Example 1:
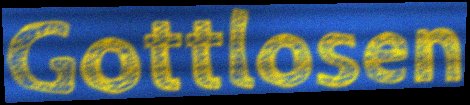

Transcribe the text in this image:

Gottlosen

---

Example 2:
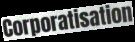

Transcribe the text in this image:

Corporatisation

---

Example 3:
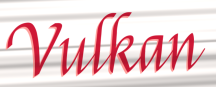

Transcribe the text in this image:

Vulkan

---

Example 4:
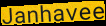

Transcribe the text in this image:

Janhavee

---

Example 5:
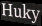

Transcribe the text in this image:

Huky